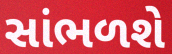
સાંભળશે